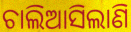
ଚାଲିଆସିଲାଣି